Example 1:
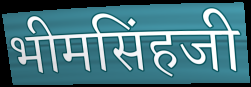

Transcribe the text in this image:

भीमसिंहजी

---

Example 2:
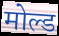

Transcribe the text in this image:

मोल्ड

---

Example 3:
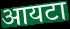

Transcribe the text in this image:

आयटा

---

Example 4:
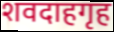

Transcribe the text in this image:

शवदाहगृह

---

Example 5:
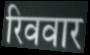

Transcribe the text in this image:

रिववार